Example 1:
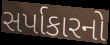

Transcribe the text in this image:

સર્પાકારનો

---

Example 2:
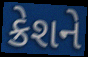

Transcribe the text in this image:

ક્રેશને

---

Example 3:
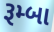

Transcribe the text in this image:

રૂમ્બા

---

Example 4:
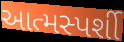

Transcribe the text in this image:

આત્મસ્પર્શી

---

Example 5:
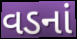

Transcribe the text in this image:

વડનાં